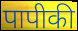
पापीकी